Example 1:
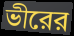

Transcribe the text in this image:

ভীরের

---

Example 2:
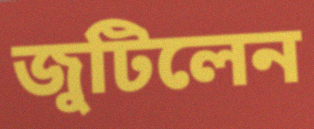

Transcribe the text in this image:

জুটিলেন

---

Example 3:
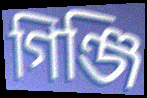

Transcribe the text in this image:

গিঞ্জি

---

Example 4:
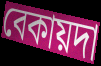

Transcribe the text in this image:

বেকায়দা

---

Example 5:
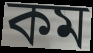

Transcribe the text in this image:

কম